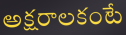
అక్షరాలకంటే